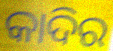
କାଦିର